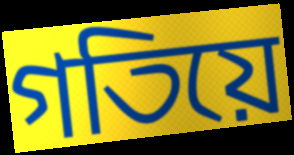
গতিয়ে